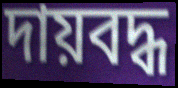
দায়বদ্ধ